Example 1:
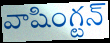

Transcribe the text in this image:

వాషింగ్టన్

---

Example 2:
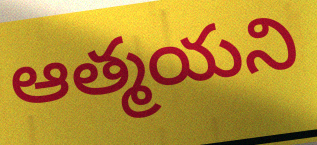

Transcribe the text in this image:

ఆత్మయని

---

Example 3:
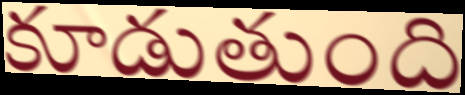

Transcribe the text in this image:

కూడుతుంది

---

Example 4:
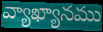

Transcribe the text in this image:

వ్యాఖ్యానము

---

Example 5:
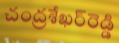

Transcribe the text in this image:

చంద్రశేఖర్‌రెడ్డి